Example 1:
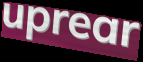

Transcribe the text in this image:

uprear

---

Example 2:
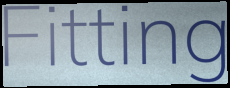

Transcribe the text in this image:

Fitting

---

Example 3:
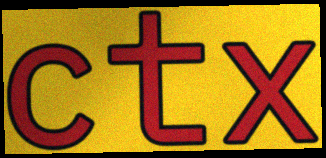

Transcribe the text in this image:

ctx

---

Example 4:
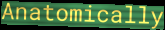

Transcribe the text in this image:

Anatomically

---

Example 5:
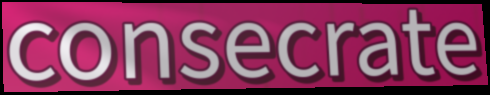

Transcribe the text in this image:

consecrate